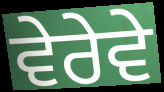
ਵੇਰੇਵੇ